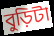
বুড়িটা